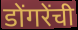
डोंगरेंची